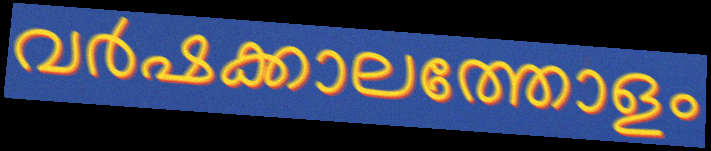
വർഷക്കാലത്തോളം